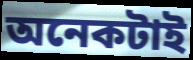
অনেকটাই